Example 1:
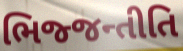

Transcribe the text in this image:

ભિજ્જન્તીતિ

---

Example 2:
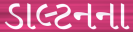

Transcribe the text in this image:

ડાલ્ટનના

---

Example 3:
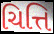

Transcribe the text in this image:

ચિત્તિ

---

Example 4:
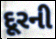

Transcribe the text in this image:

દૂરની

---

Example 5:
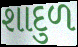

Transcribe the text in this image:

શાદુળ